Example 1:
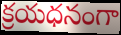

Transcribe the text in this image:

క్రయధనంగా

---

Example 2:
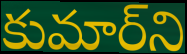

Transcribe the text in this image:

కుమార్‌ని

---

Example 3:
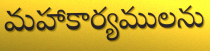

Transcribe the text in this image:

మహాకార్యములను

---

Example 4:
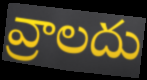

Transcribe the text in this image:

వ్రాలదు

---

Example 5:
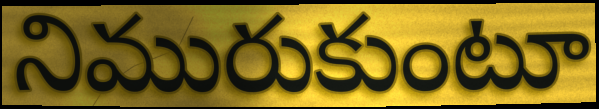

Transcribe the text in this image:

నిమురుకుంటూ